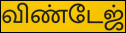
விண்டேஜ்